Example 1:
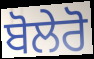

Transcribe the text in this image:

ਬੋਲੇਰੋ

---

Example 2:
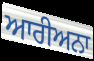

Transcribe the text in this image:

ਆਰੀਅਨਾ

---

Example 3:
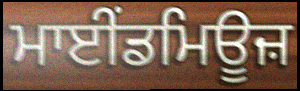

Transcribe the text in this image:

ਮਾਈਂਡਮਿਊਜ਼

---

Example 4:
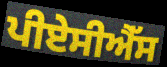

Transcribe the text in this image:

ਪੀਏਸੀਐੱਸ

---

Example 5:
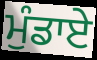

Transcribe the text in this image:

ਮੁੰਡਾਏ